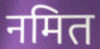
नमित